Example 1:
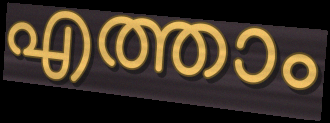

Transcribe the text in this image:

എത്താം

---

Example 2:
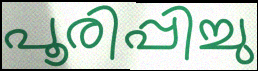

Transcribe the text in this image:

പൂരിപ്പിച്ചു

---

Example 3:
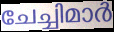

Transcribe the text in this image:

ചേച്ചിമാർ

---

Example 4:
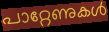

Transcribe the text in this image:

പാറ്റേണുകൾ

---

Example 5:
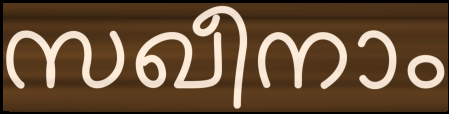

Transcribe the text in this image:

സഖീനാം